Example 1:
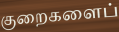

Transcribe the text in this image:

குறைகளைப்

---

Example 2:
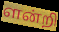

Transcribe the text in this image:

ளன்றி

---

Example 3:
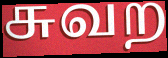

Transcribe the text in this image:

சுவற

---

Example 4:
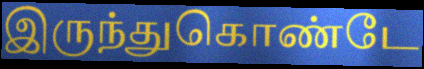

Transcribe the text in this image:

இருந்துகொண்டே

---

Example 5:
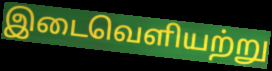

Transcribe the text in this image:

இடைவெளியற்று